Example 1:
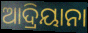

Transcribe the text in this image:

ଆଦ୍ରିୟାନା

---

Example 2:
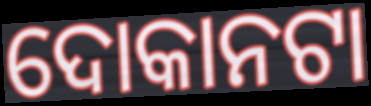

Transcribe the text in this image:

ଦୋକାନଟା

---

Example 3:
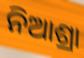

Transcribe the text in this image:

ନିଆଶ୍ରା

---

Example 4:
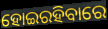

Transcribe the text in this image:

ହୋଇରହିବାରେ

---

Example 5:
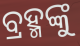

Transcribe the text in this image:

ବ୍ରହ୍ମଙ୍କୁ